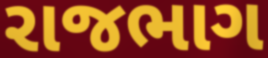
રાજભાગ